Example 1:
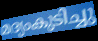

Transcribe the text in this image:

മദ്യംകുടിച്ചു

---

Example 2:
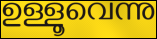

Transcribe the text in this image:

ഉള്ളൂവെന്നു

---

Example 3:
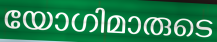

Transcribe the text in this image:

യോഗിമാരുടെ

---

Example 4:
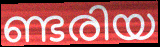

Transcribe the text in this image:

ണ്ടരിയ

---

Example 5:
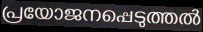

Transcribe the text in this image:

പ്രയോജനപ്പെടുത്തൽ